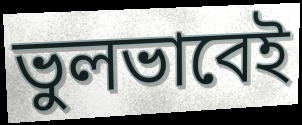
ভুলভাবেই